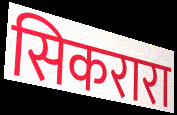
सिकरारा